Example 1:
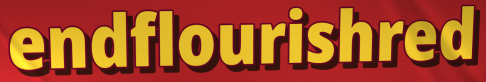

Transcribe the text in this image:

endflourishred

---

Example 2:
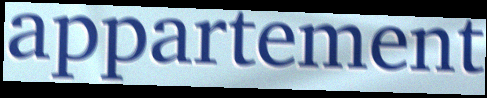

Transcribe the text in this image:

appartement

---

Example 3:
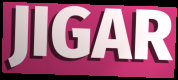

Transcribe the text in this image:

JIGAR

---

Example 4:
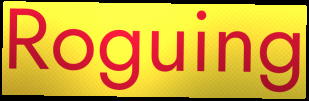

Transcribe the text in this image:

Roguing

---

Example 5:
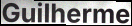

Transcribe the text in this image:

Guilherme